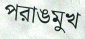
পরাঙমুখ